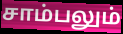
சாம்பலும்